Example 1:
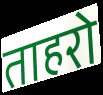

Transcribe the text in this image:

ताहरो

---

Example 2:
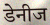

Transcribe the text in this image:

डेनीज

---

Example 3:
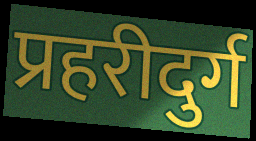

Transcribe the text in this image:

प्रहरीदुर्ग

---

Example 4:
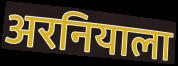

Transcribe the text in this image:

अरनियाला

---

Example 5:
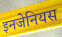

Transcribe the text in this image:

इनजेनियस